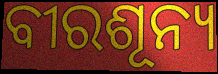
ବୀରଶୂନ୍ୟ